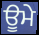
ਊਮੇ